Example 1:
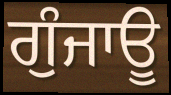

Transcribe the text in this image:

ਗੁੰਜਾਊ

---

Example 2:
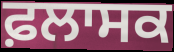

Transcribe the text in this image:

ਫ਼ਲਾਸਕ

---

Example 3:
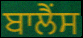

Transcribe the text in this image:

ਬਾਲੈਂਸ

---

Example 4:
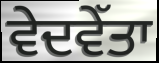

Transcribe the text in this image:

ਵੇਦਵੇੱਤਾ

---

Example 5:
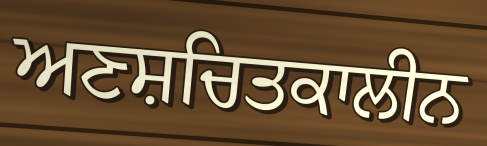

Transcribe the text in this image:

ਅਣਸ਼ਚਿਤਕਾਲੀਨ